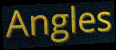
Angles